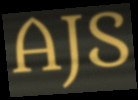
AJS